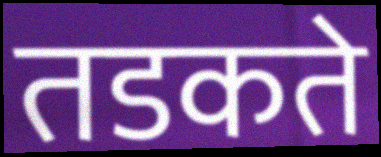
तडकते